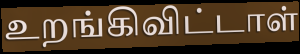
உறங்கிவிட்டாள்